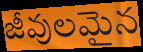
జీవులమైన